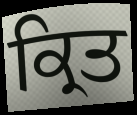
ਕ੍ਰਿਤ